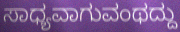
ಸಾಧ್ಯವಾಗುವಂಥದ್ದು